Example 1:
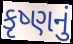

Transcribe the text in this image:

કૃષ્ણનું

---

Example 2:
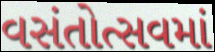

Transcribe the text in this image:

વસંતોત્સવમાં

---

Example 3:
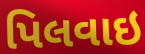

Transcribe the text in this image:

પિલવાઇ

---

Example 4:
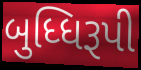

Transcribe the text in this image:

બુધ્ધિરૂપી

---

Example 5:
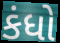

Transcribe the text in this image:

કંધો